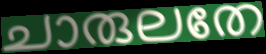
ചാരുലതേ